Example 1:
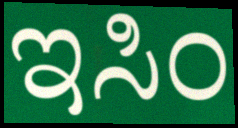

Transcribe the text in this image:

ಇಸಿಂ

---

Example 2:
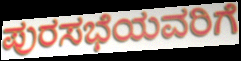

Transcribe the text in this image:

ಪುರಸಭೆಯವರಿಗೆ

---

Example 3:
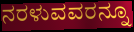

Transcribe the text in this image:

ನರಳುವವರನ್ನೂ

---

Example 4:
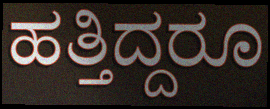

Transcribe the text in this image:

ಹತ್ತಿದ್ದರೂ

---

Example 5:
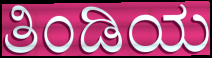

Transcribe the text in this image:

ತಿಂಡಿಯ